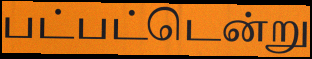
பட்பட்டென்று